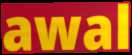
awal